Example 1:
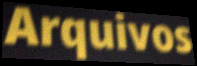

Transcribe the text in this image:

Arquivos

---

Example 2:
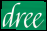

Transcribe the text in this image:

dree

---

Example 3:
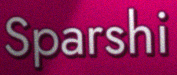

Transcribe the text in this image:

Sparshi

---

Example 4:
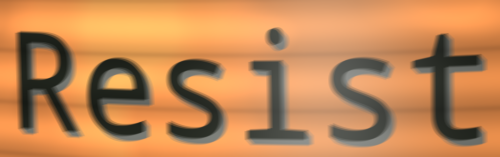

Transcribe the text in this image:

Resist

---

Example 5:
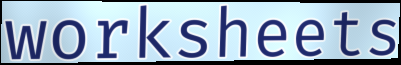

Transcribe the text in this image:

worksheets